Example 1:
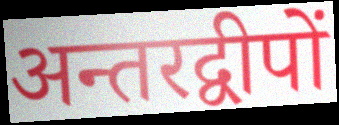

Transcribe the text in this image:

अन्तरद्वीपों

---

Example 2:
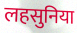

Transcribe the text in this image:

लहसुनिया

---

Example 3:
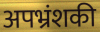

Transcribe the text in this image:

अपभ्रंशकी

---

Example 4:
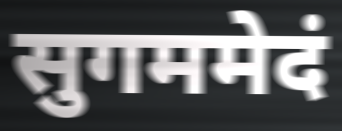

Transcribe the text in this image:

सुगममेदं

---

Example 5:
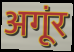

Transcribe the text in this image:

अगूंर